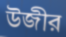
উজীর